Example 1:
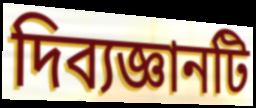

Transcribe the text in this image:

দিব্যজ্ঞানটি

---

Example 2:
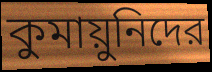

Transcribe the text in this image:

কুমায়ুনিদের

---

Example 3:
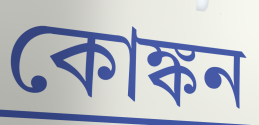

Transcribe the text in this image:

কোঙ্কন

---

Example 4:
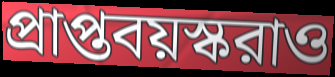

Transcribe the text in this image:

প্রাপ্তবয়স্করাও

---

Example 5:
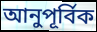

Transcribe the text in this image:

আনুপূর্বিক